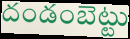
దండంబెట్టు